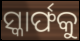
ସ୍କାର୍ଫକୁ